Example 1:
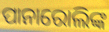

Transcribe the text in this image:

ପାନାରୋଲିଙ୍କ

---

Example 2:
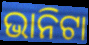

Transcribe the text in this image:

ଭାନିଟା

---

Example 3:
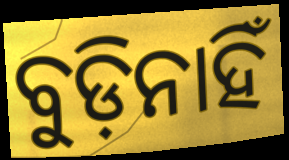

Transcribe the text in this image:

ବୁଡ଼ିନାହିଁ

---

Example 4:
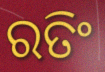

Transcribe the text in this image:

ରତିଂ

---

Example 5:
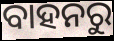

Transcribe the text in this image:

ବାହନରୁ